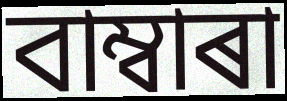
বাম্বাৰা